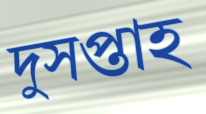
দুসপ্তাহ